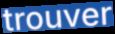
trouver